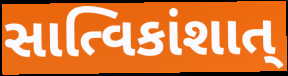
સાત્વિકાંશાત્